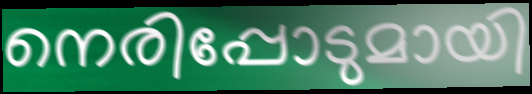
നെരിപ്പോടുമായി